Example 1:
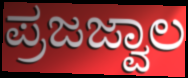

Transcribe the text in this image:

ಪ್ರಜಜ್ವಾಲ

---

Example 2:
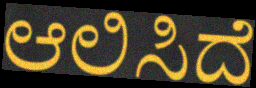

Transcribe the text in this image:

ಆಲಿಸಿದೆ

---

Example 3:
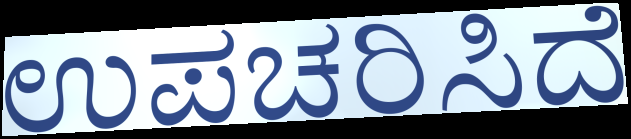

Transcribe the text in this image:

ಉಪಚರಿಸಿದೆ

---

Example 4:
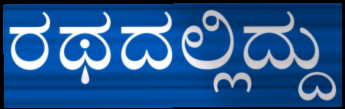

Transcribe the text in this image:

ರಥದಲ್ಲಿದ್ದು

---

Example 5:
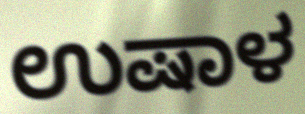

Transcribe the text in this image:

ಉಷಾಳ